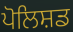
ਪੋਲਿਸ਼ਡ